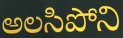
అలసిపోని